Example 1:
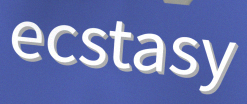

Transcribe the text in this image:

ecstasy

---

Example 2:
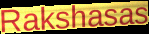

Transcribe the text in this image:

Rakshasas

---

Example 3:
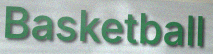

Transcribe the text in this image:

Basketball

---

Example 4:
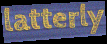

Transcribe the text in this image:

latterly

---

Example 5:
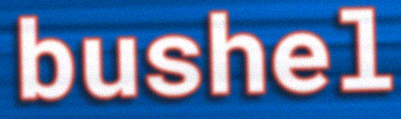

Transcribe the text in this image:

bushel